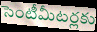
సెంటీమీటర్లకు